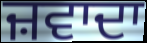
ਜ਼ਵਾਦਾ